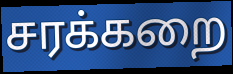
சரக்கறை